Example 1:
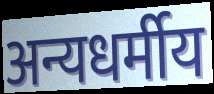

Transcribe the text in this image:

अन्यधर्मीय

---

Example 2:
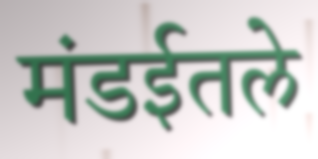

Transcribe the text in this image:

मंडईतले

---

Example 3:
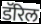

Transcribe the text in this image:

डॅरिल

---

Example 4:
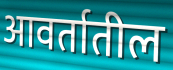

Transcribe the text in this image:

आवर्तातील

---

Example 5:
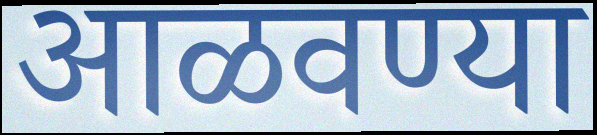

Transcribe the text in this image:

आळवण्या